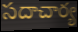
సదాచార్య